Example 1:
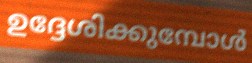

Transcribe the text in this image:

ഉദ്ദേശിക്കുമ്പോൾ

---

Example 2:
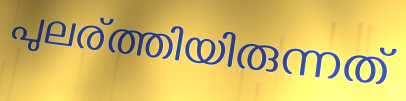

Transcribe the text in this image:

പുലര്ത്തിയിരുന്നത്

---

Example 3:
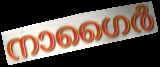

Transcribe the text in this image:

നാഗൈർ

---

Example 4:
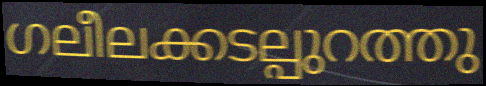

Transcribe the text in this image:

ഗലീലക്കടല്പുറത്തു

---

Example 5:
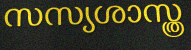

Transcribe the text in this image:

സസ്യശാസ്ത്ര